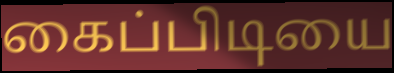
கைப்பிடியை